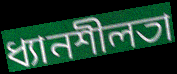
ধ্যানশীলতা